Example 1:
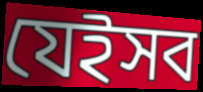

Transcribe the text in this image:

যেইসব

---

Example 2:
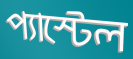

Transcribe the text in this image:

প্যাস্টেল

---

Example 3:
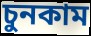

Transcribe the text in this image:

চুনকাম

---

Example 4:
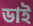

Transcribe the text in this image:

ডাই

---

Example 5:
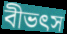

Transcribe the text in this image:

বীভৎস